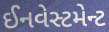
ઈનવેસ્ટમેન્ટ